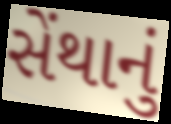
સેંથાનું